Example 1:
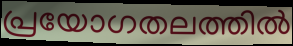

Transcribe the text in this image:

പ്രയോഗതലത്തിൽ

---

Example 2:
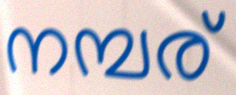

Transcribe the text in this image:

നമ്പര്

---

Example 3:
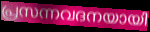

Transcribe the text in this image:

പ്രസന്നവദനയായി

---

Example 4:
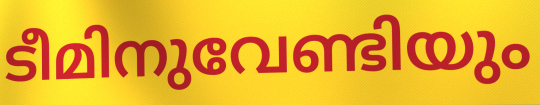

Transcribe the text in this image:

ടീമിനുവേണ്ടിയും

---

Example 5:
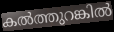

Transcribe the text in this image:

കൽത്തുറങ്കിൽ